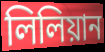
লিলিয়ান